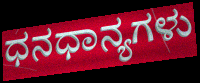
ಧನಧಾನ್ಯಗಳು